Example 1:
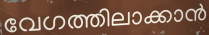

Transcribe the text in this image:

വേഗത്തിലാക്കാൻ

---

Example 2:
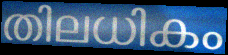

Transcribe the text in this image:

തിലധികം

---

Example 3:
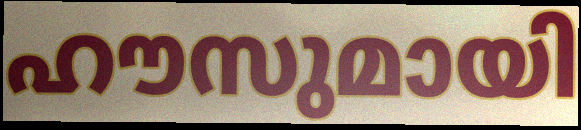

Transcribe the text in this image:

ഹൗസുമായി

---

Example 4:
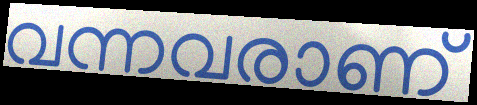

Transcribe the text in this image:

വന്നവരാണ്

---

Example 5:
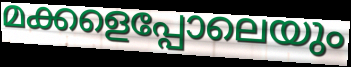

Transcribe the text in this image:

മക്കളെപ്പോലെയും